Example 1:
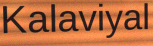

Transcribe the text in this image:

Kalaviyal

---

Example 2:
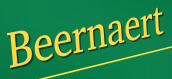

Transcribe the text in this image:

Beernaert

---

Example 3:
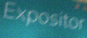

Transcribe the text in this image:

Expositor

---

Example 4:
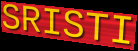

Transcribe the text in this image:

SRISTI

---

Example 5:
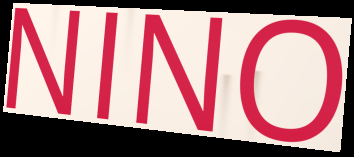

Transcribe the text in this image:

NINO